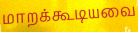
மாறக்கூடியவை